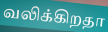
வலிக்கிறதா